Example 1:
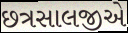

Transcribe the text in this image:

છત્રસાલજીએ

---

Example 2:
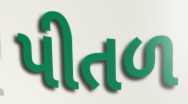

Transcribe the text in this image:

પીતળ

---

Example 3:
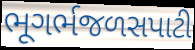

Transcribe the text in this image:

ભૂગર્ભજળસપાટી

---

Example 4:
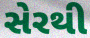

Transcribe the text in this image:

સેરથી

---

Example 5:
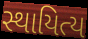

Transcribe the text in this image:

સ્થાયિત્ય